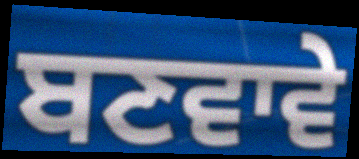
ਬਣਵਾਵੇ